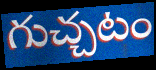
గుచ్చటం